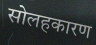
सोलहकारण